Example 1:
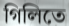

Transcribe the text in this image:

গিলিতে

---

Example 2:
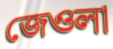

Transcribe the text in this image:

জেওলা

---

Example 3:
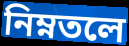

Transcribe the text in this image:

নিম্নতলে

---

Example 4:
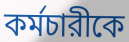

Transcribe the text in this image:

কর্মচারীকে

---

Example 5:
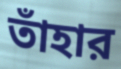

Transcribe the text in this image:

তাঁহার